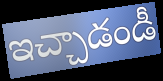
ఇచ్చాడండీ